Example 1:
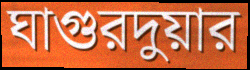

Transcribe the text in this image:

ঘাগুরদুয়ার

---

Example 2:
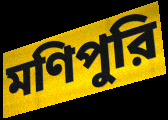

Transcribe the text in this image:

মণিপুরি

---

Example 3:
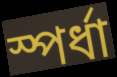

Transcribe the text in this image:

স্পর্ধা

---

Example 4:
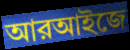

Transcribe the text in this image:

আরআইজে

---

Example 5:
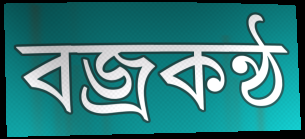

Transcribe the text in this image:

বজ্রকন্ঠ